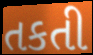
તકતી